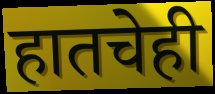
हातचेही